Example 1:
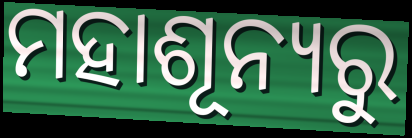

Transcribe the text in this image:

ମହାଶୂନ୍ୟରୁ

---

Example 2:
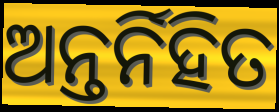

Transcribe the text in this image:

ଅନ୍ତର୍ନିହିତ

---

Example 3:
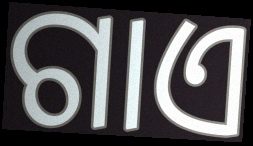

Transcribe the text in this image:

ଗାଏ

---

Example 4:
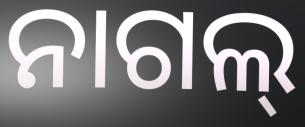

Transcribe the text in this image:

ନାଗଲ୍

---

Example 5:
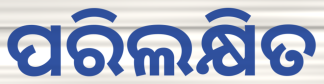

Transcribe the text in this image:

ପରିଲକ୍ଷିତ